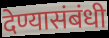
देण्यासंबंधी